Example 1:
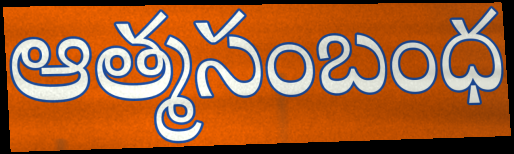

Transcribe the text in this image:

ఆత్మసంబంధ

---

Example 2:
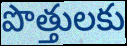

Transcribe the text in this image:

పొత్తులకు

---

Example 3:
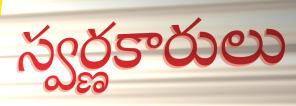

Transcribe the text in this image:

స్వర్ణకారులు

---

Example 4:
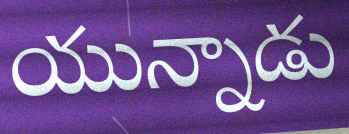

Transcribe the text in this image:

యున్నాడు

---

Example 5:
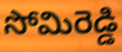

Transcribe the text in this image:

సోమిరెడ్డి